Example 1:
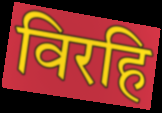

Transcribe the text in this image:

विरहि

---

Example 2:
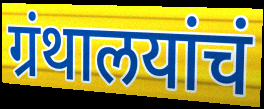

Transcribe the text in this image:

ग्रंथालयांचं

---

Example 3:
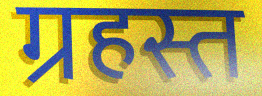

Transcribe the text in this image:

ग्रहस्त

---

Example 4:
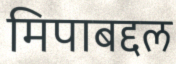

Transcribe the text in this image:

मिपाबद्दल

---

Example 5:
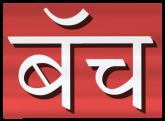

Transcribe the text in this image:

बॅच